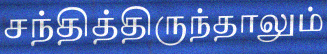
சந்தித்திருந்தாலும்